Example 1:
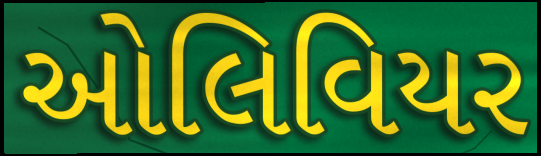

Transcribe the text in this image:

ઓલિવિયર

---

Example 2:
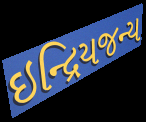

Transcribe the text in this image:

ઇન્દ્રિયજન્ય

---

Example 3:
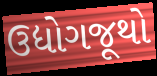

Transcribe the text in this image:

ઉદ્યોગજૂથો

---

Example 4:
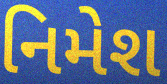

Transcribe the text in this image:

નિમેશ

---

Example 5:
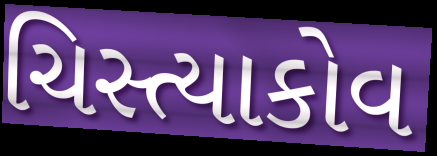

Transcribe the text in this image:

ચિસ્ત્યાકોવ